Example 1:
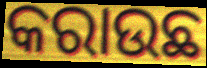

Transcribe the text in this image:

କରାଉଛ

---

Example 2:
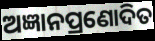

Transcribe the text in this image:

ଅଜ୍ଞାନପ୍ରଣୋଦିତ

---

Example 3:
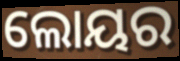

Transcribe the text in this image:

ଲୋୟର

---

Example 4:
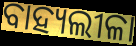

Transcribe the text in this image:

ବାହ୍ୟଲୀଳା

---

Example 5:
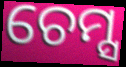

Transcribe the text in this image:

ଚେମ୍ସ